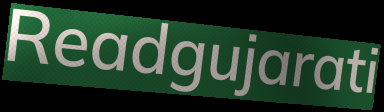
Readgujarati